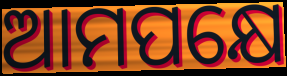
ଆମପକ୍ଷେ